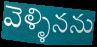
వెళ్ళినను